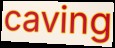
caving